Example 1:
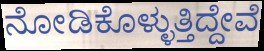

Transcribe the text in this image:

ನೋಡಿಕೊಳ್ಳುತ್ತಿದ್ದೇವೆ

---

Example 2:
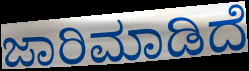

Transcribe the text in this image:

ಜಾರಿಮಾಡಿದೆ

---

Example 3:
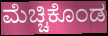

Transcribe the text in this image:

ಮೆಚ್ಚಿಕೊಂಡ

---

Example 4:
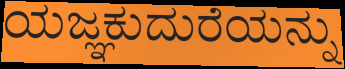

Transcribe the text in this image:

ಯಜ್ಞಕುದುರೆಯನ್ನು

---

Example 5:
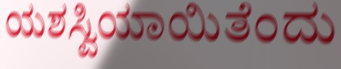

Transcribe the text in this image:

ಯಶಸ್ವಿಯಾಯಿತೆಂದು